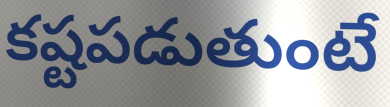
కష్టపడుతుంటే